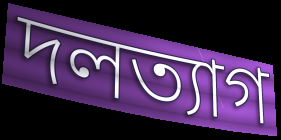
দলত্যাগ